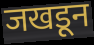
जखडून